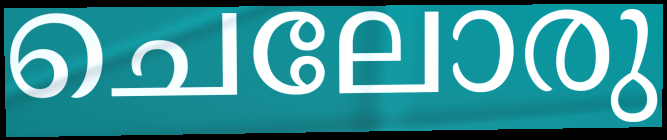
ചെലോരു